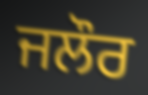
ਜਲੌਰ